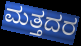
ಮತ್ತದರ